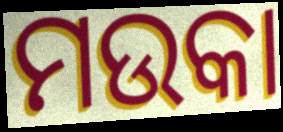
ମଉକା